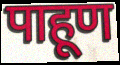
पाहूण